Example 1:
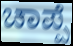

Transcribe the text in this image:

ಚಾಪ್ಪೆ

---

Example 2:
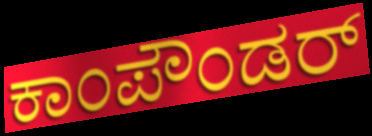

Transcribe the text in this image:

ಕಾಂಪೌಂಡರ್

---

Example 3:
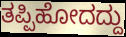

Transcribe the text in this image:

ತಪ್ಪಿಹೋದದ್ದು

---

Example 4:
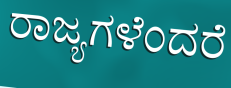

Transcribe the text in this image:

ರಾಜ್ಯಗಳೆಂದರೆ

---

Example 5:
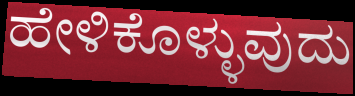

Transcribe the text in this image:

ಹೇಳಿಕೊಳ್ಳುವುದು